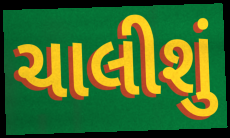
ચાલીશું